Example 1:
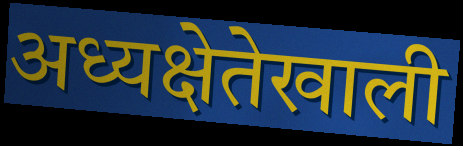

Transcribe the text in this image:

अध्यक्षेतेखाली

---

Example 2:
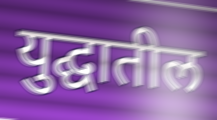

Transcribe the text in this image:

युद्घातील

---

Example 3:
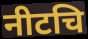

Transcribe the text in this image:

नीटचि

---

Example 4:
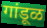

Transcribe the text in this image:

गांडूळ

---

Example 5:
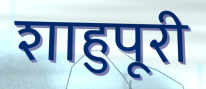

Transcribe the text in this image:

शाहुपूरी